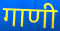
गाणी